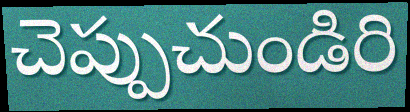
చెప్పుచుండిరి